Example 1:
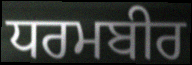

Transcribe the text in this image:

ਧਰਮਬੀਰ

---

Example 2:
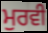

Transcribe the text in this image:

ਮੁਰਵੀ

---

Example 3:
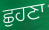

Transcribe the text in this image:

ਛੁਹਣਾ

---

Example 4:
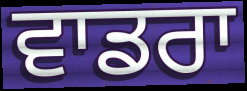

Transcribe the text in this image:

ਵਾਡਰਾ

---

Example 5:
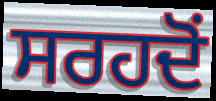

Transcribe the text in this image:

ਸਰਹਦੋਂ